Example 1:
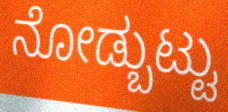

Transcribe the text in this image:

ನೋಡ್ಬುಟ್ಟು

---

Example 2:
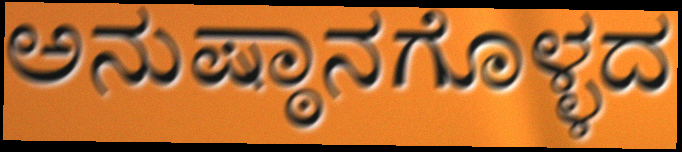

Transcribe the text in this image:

ಅನುಷ್ಠಾನಗೊಳ್ಳದ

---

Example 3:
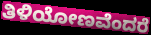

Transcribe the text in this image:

ತಿಳಿಯೋಣವೆಂದರೆ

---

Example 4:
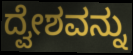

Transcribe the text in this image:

ದ್ವೇಶವನ್ನು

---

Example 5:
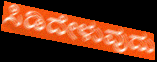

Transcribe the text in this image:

ಸಿಡಿದೇಳುವುದು